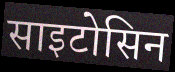
साइटोसिन